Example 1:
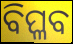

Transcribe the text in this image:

ବିପ୍ଳବ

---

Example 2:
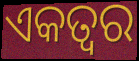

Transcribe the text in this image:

ଏକତ୍ବର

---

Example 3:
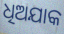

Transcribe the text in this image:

ଧିଅଯାକ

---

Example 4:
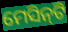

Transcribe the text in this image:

ମେସିନ୍‌ଟି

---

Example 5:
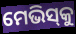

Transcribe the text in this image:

ମେଭିସ୍‌କୁ